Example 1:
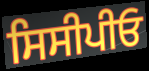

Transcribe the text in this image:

ਸਿਸੀਪੀਓ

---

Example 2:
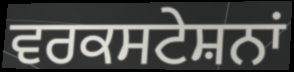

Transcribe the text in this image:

ਵਰਕਸਟੇਸ਼ਨਾਂ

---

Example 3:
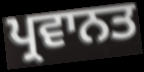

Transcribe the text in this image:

ਪ੍ਰਵਾਨਤ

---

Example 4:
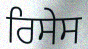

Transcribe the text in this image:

ਰਿਸੇਸ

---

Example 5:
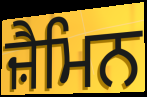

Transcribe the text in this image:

ਜ਼ੈਮਿਨ